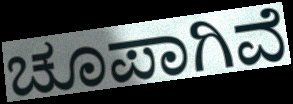
ಚೂಪಾಗಿವೆ